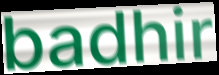
badhir